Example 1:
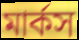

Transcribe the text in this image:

মার্কস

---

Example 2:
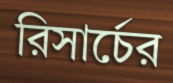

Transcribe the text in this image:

রিসার্চের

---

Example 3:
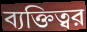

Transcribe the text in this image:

ব্যক্তিত্বর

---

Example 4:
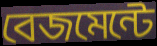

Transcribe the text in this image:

বেজমেন্টে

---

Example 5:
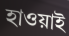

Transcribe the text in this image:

হাওয়াই